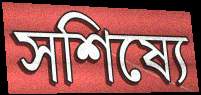
সশিষ্যে